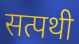
सत्पथी